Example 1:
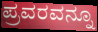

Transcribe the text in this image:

ಪ್ರವರವನ್ನೂ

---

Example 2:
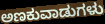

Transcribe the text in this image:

ಅಣಕುವಾಡುಗಳು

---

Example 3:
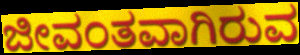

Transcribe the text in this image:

ಜೀವಂತವಾಗಿರುವ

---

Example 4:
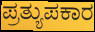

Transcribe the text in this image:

ಪ್ರತ್ಯುಪಕಾರ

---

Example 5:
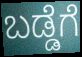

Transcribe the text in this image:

ಬಡ್ಡೆಗೆ